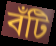
বঁটি